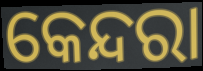
କେନ୍ଦରା